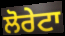
ਲੋਰੇਟਾ